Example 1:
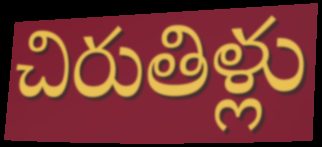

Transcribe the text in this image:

చిరుతిళ్లు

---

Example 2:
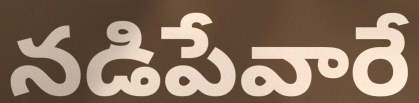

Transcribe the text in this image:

నడిపేవారే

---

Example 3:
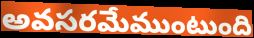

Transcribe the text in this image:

అవసరమేముంటుంది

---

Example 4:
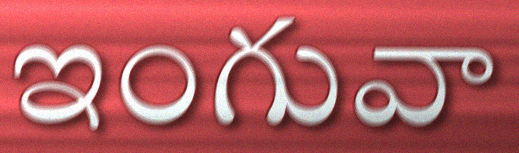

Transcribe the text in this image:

ఇంగువా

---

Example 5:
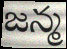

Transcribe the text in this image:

జన్మ